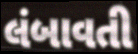
લંબાવતી